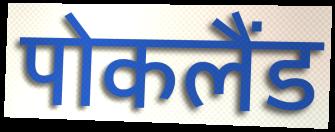
पोकलैंड